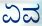
ಏವ